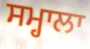
ਸਮ੍ਹ੍ਹਾਲਾ